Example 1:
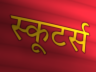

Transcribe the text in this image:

स्‍कूटर्स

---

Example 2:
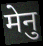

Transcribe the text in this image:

मेनु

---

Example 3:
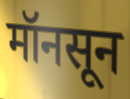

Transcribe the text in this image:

मॉनसून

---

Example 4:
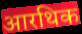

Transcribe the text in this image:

आरथिक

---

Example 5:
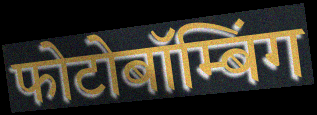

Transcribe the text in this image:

फोटोबॉम्बिंग